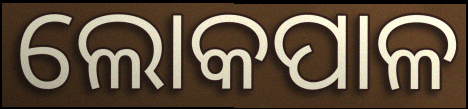
ଲୋକପାଳ